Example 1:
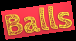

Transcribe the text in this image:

Balls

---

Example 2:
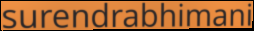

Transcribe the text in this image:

surendrabhimani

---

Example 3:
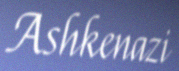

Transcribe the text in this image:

Ashkenazi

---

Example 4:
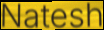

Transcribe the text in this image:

Natesh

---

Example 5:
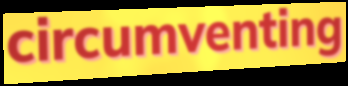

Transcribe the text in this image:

circumventing